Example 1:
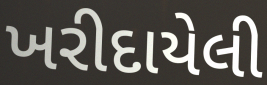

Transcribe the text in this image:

ખરીદાયેલી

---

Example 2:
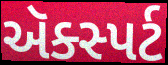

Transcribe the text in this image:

ઍક્સ્પર્ટ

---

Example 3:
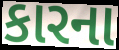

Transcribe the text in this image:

કારના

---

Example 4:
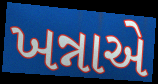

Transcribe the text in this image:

ખન્નાએ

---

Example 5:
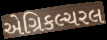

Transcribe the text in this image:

એગ્રિકલ્ચરલ